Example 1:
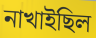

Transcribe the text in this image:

নাখাইছিল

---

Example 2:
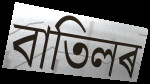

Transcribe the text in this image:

বাতিলৰ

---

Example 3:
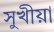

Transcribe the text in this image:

সুখীয়া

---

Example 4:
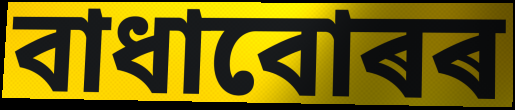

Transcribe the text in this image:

বাধাবোৰৰ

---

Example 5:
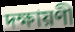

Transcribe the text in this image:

দক্ষায়ণী